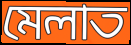
মেলাত